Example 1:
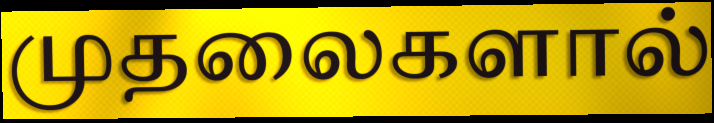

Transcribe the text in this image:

முதலைகளால்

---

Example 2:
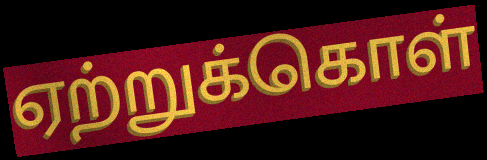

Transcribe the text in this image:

ஏற்றுக்கொள்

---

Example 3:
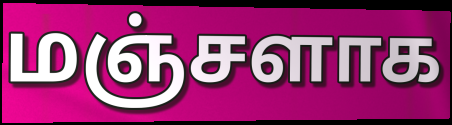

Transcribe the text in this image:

மஞ்சளாக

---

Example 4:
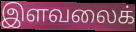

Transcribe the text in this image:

இளவலைக்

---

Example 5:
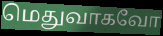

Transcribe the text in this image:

மெதுவாகவோ